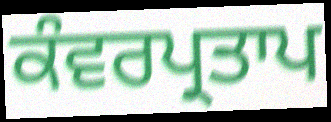
ਕੰਵਰਪ੍ਰਤਾਪ